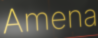
Amena